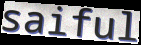
saiful